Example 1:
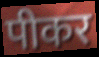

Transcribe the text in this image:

पीकर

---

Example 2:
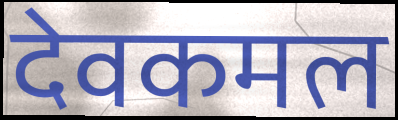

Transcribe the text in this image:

देवकमल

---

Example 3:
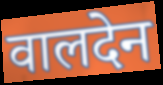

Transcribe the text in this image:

वालदेन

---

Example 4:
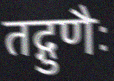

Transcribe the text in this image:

तद्गुणैः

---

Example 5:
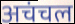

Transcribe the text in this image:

अचंचल